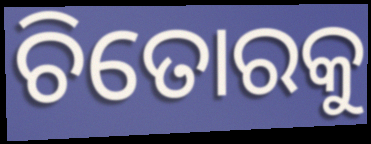
ଚିତୋରକୁ